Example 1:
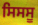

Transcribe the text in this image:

ਸਿਸਸੂ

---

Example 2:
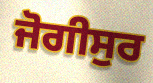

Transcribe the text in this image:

ਜੋਗੀਸੁਰ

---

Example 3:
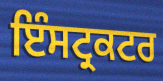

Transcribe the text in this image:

ਇੰਸਟ੍ਰਕਟਰ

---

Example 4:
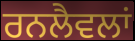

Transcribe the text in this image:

ਰਨਲੈਵਲਾਂ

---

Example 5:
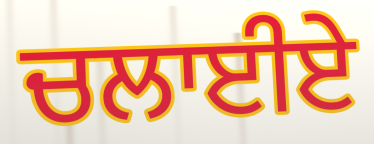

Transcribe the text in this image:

ਚਲਾਈਏ